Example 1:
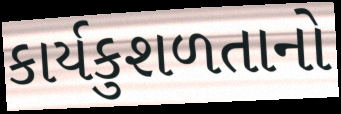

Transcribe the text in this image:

કાર્યકુશળતાનો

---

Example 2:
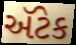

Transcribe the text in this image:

ઍટેક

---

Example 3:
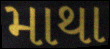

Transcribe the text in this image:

માથા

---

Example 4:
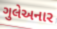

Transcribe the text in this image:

ગુલેઅનાર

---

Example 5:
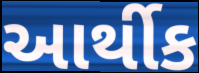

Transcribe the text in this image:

આર્થીક